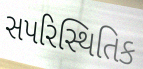
સપરિસ્થિતિક